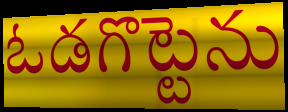
ఓడగొట్టెను